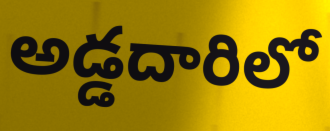
అడ్డదారిలో